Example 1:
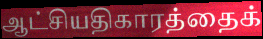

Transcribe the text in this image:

ஆட்சியதிகாரத்தைக்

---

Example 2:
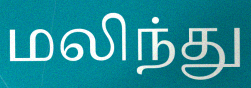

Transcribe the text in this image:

மலிந்து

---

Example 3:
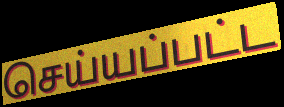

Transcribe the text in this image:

செய்யப்பட்ட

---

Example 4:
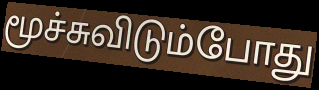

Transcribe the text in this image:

மூச்சுவிடும்போது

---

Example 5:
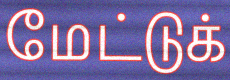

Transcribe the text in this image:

மேட்டுக்